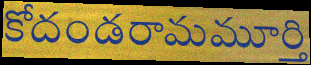
కోదండరామమూర్తి